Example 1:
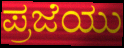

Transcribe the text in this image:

ಪ್ರಜೆಯು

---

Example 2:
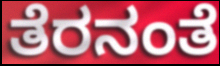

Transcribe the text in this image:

ತೆರನಂತೆ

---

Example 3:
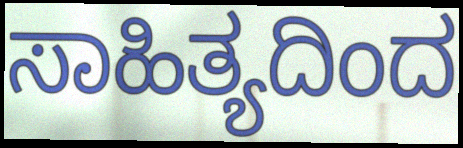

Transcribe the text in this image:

ಸಾಹಿತ್ಯದಿಂದ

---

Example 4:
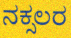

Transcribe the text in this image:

ನಕ್ಸಲರ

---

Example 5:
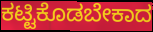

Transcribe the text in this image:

ಕಟ್ಟಿಕೊಡಬೇಕಾದ